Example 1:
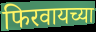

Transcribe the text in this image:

फिरवायच्या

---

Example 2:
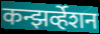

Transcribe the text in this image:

कन्झर्व्हेशन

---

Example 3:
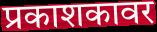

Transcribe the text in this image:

प्रकाशकावर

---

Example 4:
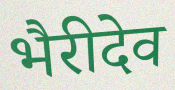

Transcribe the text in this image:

भैरीदेव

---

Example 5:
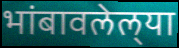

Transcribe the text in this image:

भांबावलेल्या